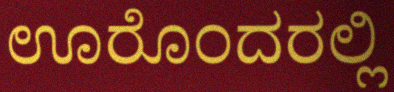
ಊರೊಂದರಲ್ಲಿ